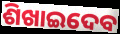
ଶିଖାଇଦେବ